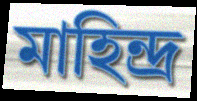
মাহিন্দ্র